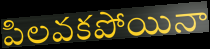
పిలవకపోయినా